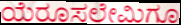
ಯೆರೂಸಲೇಮಿಗೂ